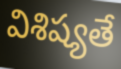
విశిష్యతే